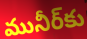
మునీర్‌కు